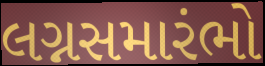
લગ્નસમારંભો